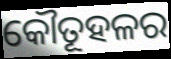
କୌତୂହଳର